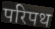
परिपथ